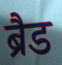
ब्रैड